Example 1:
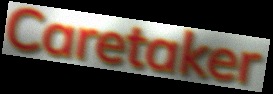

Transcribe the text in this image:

Caretaker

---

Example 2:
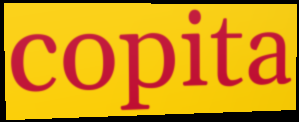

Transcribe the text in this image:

copita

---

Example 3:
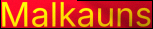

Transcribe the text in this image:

Malkauns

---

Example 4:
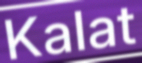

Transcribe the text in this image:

Kalat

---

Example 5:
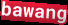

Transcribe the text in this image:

bawang